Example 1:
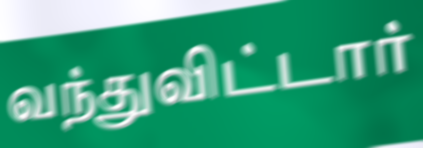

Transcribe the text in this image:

வந்துவிட்டார்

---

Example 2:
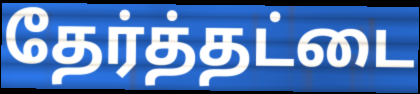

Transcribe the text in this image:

தேர்த்தட்டை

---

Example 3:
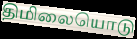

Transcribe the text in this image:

திமிலையொடு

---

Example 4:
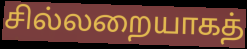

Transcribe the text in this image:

சில்லறையாகத்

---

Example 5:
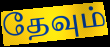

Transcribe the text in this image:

தேவும்